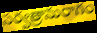
సర్వత్రానురాగం